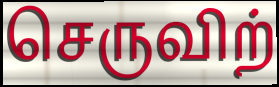
செருவிற்